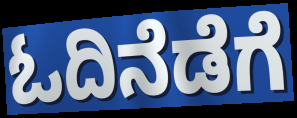
ಓದಿನೆಡೆಗೆ